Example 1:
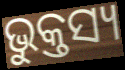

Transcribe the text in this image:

ଭୁକ୍ତସ୍ୟ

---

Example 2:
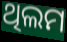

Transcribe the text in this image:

ଥିଲମ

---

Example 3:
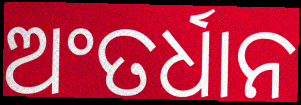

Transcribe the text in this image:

ଅଂତର୍ଧାନ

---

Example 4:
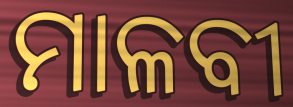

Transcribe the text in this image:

ମାଳବୀ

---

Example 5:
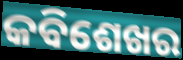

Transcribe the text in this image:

କବିଶେଖର